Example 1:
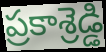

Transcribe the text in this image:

ప్రకాశ్రెడ్డి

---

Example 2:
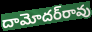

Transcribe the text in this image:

దామోదర్‌రావు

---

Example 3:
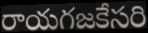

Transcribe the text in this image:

రాయగజకేసరి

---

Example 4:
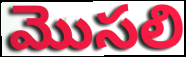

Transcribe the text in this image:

మొసలి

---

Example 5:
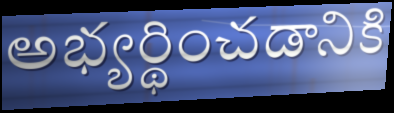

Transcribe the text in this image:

అభ్యర్థించడానికి